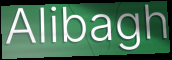
Alibagh